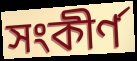
সংকীৰ্ণ